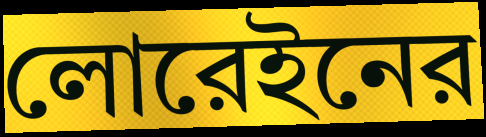
লোরেইনের